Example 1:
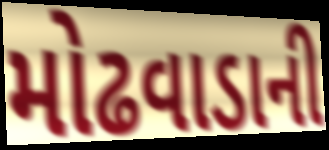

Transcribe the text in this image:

મોઢવાડાની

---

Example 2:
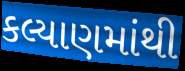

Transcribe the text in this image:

કલ્યાણમાંથી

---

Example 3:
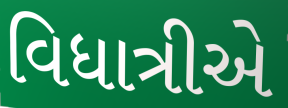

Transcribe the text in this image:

વિધાત્રીએ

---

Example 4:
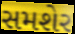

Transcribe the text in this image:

સમશેર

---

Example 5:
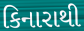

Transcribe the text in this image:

કિનારાથી